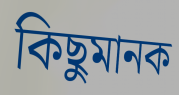
কিছুমানক